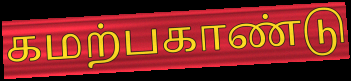
கமற்பகாண்டு